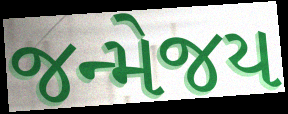
જન્મેજય